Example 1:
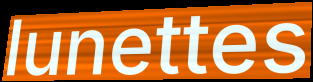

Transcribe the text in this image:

lunettes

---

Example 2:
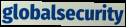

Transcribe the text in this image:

globalsecurity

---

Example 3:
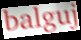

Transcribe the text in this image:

balguj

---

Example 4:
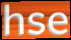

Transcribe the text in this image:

hse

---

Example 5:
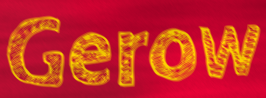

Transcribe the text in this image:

Gerow